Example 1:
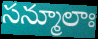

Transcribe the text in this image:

సన్మూలాః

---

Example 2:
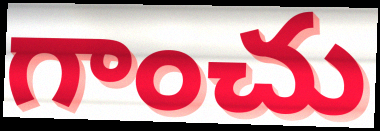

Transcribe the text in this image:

గాంచు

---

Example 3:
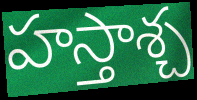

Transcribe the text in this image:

హస్తాశ్చ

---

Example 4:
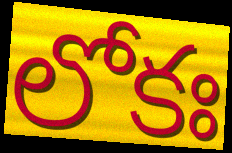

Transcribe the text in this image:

లోకః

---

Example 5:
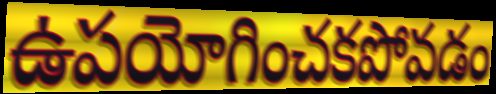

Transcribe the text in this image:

ఉపయోగించకపోవడం